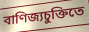
বাণিজ্যচুক্তিতে